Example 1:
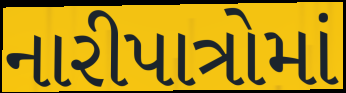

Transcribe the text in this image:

નારીપાત્રોમાં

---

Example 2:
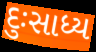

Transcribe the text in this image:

દુઃસાધ્ય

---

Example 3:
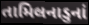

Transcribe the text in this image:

તામિલનાડુનાં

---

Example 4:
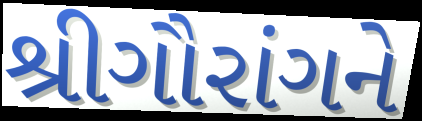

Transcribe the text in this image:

શ્રીગૌરાંગને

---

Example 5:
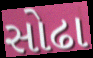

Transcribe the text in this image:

સોઢા